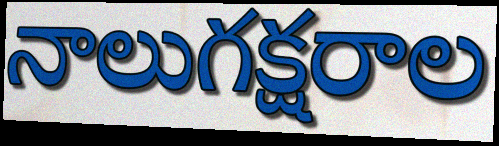
నాలుగక్షరాల